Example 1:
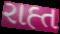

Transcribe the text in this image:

રાહ્ત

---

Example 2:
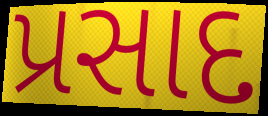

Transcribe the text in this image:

પ્રસાદ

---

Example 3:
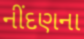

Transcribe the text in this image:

નીંદણના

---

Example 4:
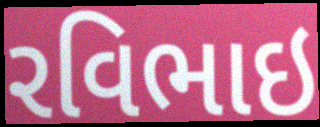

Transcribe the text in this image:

રવિભાઇ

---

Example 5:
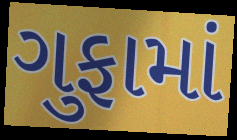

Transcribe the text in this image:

ગુફામાં